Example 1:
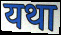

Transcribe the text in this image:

यथा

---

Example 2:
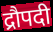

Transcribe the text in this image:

द्रौपदी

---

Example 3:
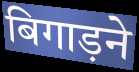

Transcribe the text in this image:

बिगाड़ने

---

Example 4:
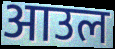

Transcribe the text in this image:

आउल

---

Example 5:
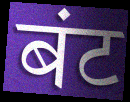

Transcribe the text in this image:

बंट